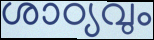
ശാഠ്യവും